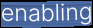
enabling